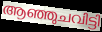
ആഞ്ഞുചവിട്ടി